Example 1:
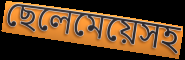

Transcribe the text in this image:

ছেলেমেয়েসহ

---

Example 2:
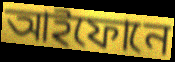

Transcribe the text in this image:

আইফোনে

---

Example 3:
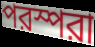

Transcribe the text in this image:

পরস্পরা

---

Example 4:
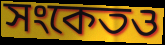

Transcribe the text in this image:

সংকেতও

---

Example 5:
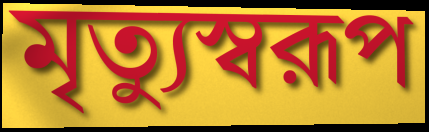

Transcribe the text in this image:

মৃত্যুস্বরূপ